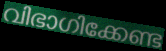
വിഭാഗിക്കേണ്ട